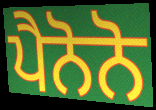
ਪੈਨੋਨੋ